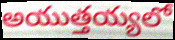
అయుత్తయ్యలో